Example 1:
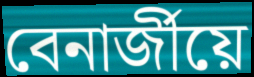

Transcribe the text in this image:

বেনাৰ্জীয়ে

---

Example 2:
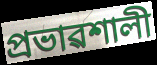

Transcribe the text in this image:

প্ৰভাৱশালী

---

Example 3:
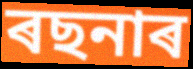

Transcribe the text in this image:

ৰছনাৰ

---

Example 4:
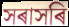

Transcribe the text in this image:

সৰাসৰি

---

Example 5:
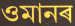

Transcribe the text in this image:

ওমানৰ